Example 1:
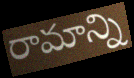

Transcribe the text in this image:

రామాన్ని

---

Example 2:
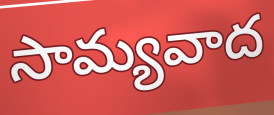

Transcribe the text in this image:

సామ్యవాద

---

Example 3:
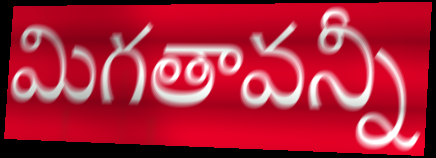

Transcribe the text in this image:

మిగతావన్నీ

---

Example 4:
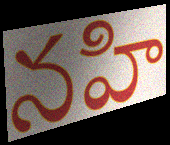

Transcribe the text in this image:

నహి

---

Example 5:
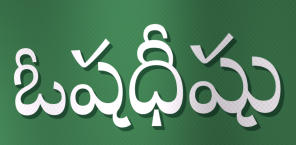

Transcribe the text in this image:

ఓషధీషు